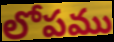
లోపము